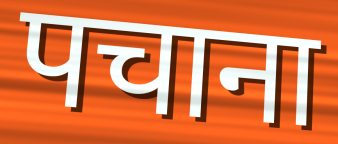
पचाना